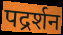
पद्रर्शन